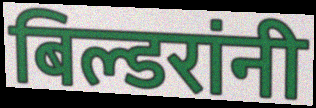
बिल्डरांनी